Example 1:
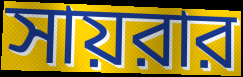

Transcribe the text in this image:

সায়রার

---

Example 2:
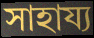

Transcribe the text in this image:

সাহায্য়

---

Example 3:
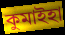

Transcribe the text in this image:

কুমাইহা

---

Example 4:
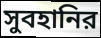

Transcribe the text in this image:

সুবহানির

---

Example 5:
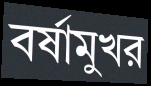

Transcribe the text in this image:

বর্ষামুখর